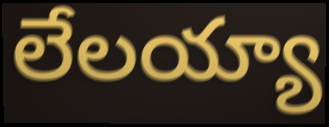
లేలయ్యా